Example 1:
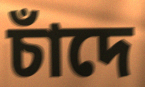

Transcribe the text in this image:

চাঁদে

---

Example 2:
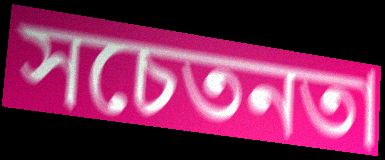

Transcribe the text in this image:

সচেতনতা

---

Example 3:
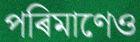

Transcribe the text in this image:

পৰিমাণেও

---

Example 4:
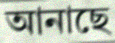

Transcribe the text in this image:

আনাছে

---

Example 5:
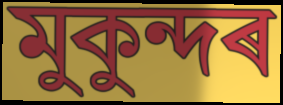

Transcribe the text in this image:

মুকুন্দৰ